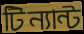
টিন্যান্ট